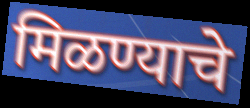
मिळण्याचे